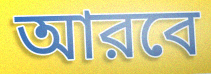
আরবে